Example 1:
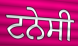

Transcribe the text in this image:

ਟਨੇਸੀ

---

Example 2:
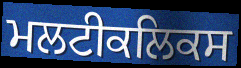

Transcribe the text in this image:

ਮਲਟੀਕਲਿਕਸ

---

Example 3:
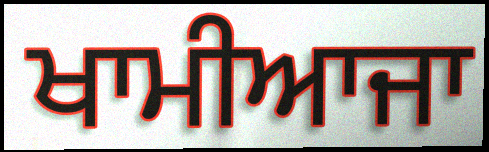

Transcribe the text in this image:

ਖਾਮੀਆਜਾ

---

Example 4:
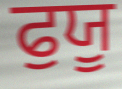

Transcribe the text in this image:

ਫੁਯੂ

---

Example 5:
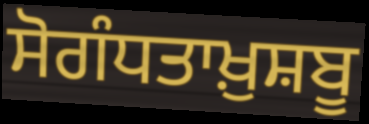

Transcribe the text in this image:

ਸੋਗੰਧਤਾਖ਼ੁਸ਼ਬੂ